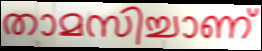
താമസിച്ചാണ്